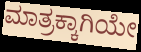
ಮಾತ್ರಕ್ಕಾಗಿಯೇ